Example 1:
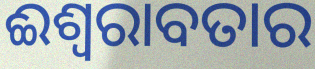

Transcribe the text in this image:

ଈଶ୍ୱରାବତାର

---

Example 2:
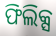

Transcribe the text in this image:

ଫିଲିକ୍ସ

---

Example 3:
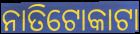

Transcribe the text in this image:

ନାତିଟୋକାଟା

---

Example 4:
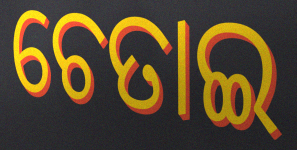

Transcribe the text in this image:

ଚେତାଇ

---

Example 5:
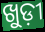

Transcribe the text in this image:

ଖୁଡ଼ୀ